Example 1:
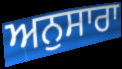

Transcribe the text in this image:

ਅਨੁਸਾਰਾ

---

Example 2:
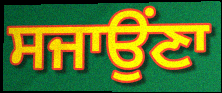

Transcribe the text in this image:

ਸਜਾਉਂਣਾ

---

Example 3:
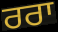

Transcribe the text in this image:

ਰਰਾ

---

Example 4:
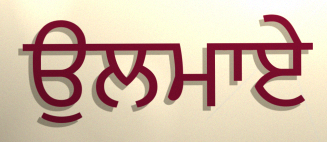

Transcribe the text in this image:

ਉਲਮਾਏ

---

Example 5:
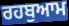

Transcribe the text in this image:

ਰਹਬੁਆਮ